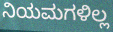
ನಿಯಮಗಳಿಲ್ಲ